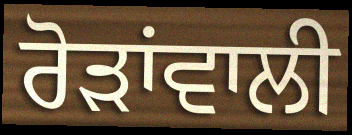
ਰੋੜਾਂਵਾਲੀ